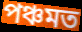
পঞ্চমত